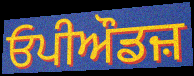
ਓਪੀਔਡਜ਼